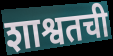
शाश्वतची